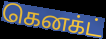
கெனக்ட்